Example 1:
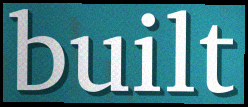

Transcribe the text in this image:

built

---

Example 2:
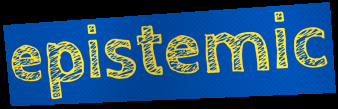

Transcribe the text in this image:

epistemic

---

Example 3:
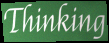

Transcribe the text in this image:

Thinking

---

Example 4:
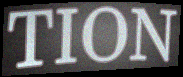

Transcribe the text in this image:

TION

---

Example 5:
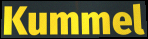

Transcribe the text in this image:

Kummel